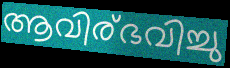
ആവിര്ഭവിച്ചു